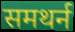
समथर्न